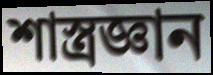
শাস্ত্রজ্ঞান